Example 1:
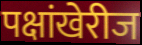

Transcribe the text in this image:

पक्षांखेरीज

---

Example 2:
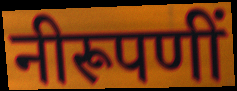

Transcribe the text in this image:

नीरूपणीं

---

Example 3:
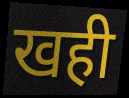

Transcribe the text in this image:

खही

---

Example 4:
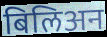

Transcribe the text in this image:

बिलिअन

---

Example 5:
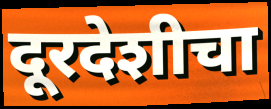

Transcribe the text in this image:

दूरदेशीचा